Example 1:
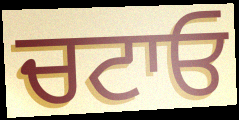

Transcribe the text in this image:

ਚਟਾਓ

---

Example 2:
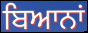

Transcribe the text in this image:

ਬਿਆਨਾਂ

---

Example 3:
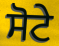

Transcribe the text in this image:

ਸੋਟੇ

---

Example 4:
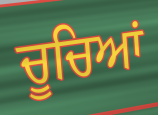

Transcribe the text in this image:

ਚੂਚਿਆਂ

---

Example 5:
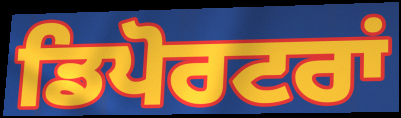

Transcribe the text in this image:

ਡਿਪੋਰਟਰਾਂ